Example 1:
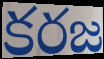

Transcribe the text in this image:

కరజ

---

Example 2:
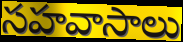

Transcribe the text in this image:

సహవాసాలు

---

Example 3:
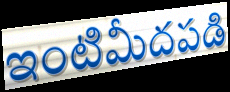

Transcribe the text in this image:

ఇంటిమీదపడి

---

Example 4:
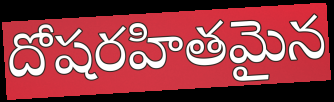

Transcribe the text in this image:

దోషరహితమైన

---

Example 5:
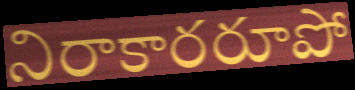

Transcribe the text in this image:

నిరాకారరూపో